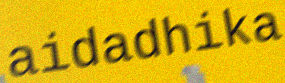
aidadhika